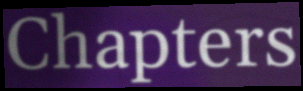
Chapters